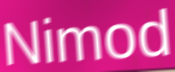
Nimod